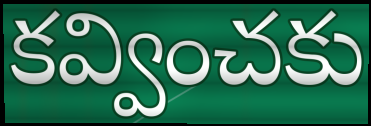
కవ్వించకు